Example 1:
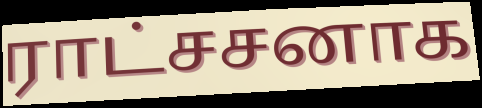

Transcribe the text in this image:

ராட்சசனாக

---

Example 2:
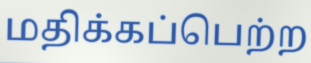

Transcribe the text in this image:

மதிக்கப்பெற்ற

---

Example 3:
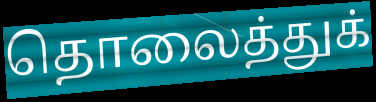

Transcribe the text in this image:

தொலைத்துக்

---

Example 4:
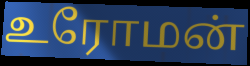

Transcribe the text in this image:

உரோமன்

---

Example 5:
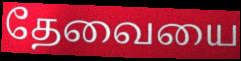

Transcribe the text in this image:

தேவையை